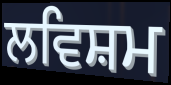
ਲਵਿਸ਼ਮ